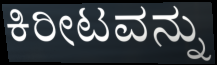
ಕಿರೀಟವನ್ನು